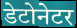
डेटोनेटर